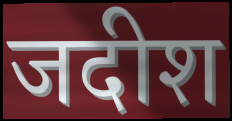
जदीश